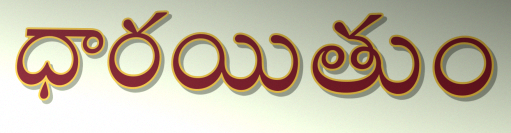
ధారయితుం